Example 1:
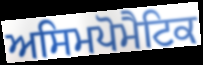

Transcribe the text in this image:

ਅਸਿਮਪੋਮੈਟਿਕ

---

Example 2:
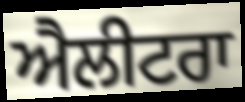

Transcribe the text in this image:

ਐਲੀਟਰਾ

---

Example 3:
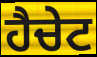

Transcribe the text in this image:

ਹੈਚੇਟ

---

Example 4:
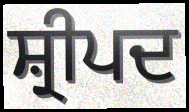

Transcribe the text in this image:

ਸ਼੍ਰੀਪਦ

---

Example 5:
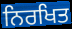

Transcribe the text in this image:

ਨਿਰਖਿਤ